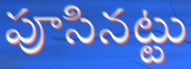
పూసినట్టు